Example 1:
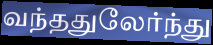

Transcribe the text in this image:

வந்ததுலேர்ந்து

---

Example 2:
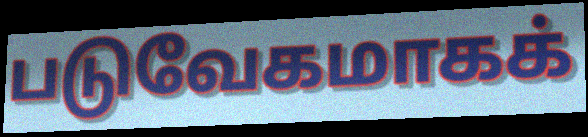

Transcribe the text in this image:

படுவேகமாகக்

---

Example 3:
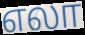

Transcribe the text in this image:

எலா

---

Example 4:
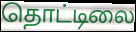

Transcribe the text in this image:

தொட்டிலை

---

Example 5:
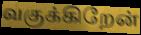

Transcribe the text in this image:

வகுக்கிறேன்